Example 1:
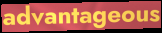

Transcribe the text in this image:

advantageous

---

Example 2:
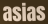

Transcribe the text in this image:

asias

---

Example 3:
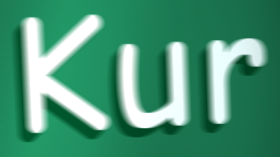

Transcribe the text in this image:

Kur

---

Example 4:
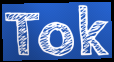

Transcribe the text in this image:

Tok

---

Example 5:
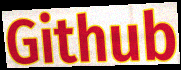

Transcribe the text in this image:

Github